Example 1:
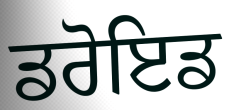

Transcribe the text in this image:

ਡਰੋਇਡ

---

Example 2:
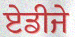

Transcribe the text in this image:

ਏਡੀਜੇ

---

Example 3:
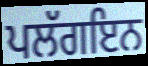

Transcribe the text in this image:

ਪਲੱਗਇਨ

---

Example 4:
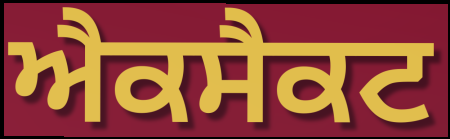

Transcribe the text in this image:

ਐਕਸੈਕਟ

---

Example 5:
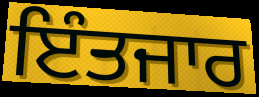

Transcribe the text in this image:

ਇੰਤਜਾਰ